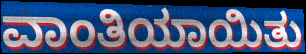
ವಾಂತಿಯಾಯಿತು